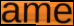
ame